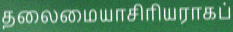
தலைமையாசிரியராகப்